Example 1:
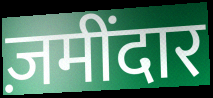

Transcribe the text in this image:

ज़मींदार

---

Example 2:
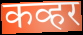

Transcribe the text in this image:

कव्हर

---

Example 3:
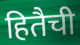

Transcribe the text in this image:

हितैची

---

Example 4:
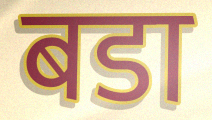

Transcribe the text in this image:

बडा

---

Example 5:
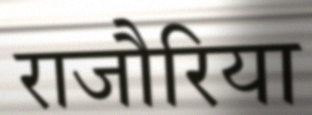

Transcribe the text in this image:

राजौरिया